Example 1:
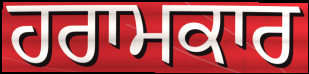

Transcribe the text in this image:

ਹਰਾਮਕਾਰ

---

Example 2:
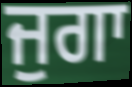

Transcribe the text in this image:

ਜੁਗਾ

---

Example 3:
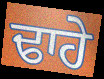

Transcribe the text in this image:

ਢਾਹੇ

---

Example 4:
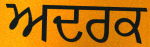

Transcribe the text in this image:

ਅਦਰਕ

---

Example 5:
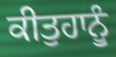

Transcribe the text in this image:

ਕੀਤੁਹਾਨੂੰ